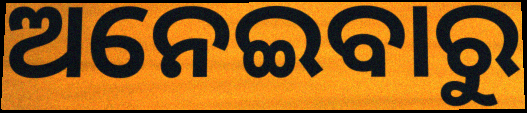
ଅନେଇବାରୁ